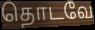
தொடவே